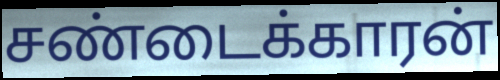
சண்டைக்காரன்